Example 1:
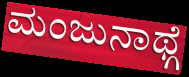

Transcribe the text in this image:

ಮಂಜುನಾಥ್ಗೆ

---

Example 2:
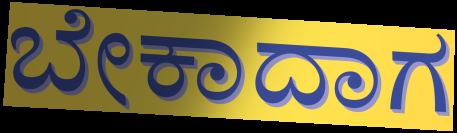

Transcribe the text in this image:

ಬೇಕಾದಾಗ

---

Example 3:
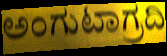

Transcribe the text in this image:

ಅಂಗುಟಾಗ್ರದಿ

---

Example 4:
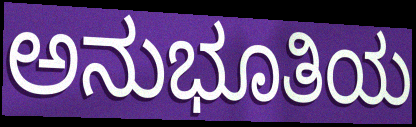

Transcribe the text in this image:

ಅನುಭೂತಿಯ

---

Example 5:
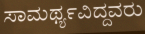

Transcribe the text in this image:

ಸಾಮರ್ಥ್ಯವಿದ್ದವರು